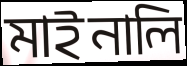
মাইনালি